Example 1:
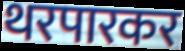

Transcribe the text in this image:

थरपारकर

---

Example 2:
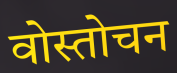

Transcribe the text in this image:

वोस्तोचन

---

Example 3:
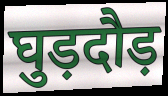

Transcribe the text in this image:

घुड़दौड़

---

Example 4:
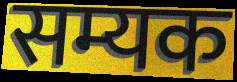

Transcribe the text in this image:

सम्‍यक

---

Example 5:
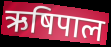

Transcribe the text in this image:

ऋषिपाल